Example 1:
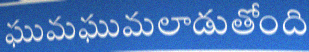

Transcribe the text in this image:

ఘుమఘుమలాడుతోంది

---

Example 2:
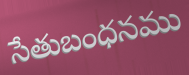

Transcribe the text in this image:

సేతుబంధనము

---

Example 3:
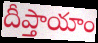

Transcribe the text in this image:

దీప్తాయాం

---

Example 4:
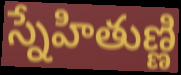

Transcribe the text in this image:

స్నేహితుణ్ణి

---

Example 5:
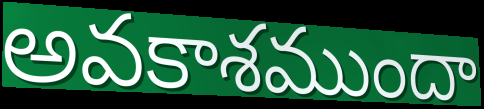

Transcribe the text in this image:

అవకాశముందా